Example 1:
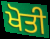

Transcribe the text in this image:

ਖੋਤੀ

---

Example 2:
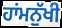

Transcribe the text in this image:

ਹਾਂਮਨੁੱਖੀ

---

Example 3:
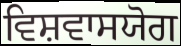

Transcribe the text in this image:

ਵਿਸ਼ਵਾਸਯੋਗ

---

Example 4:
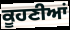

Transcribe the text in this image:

ਕੂਹਣੀਆਂ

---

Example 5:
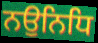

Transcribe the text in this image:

ਨਉਨਿਧਿ